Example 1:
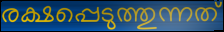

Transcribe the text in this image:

രക്ഷപ്പെടുത്തുന്നത്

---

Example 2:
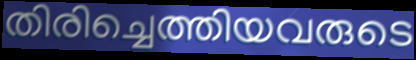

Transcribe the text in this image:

തിരിച്ചെത്തിയവരുടെ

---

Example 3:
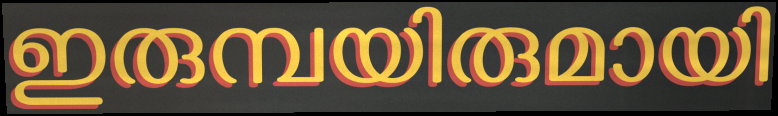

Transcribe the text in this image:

ഇരുമ്പയിരുമായി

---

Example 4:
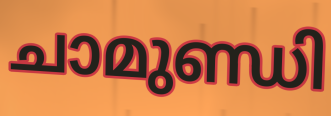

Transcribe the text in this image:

ചാമുണ്ഡി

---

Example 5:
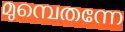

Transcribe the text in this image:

മുമ്പെതന്നേ